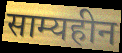
साम्यहीन